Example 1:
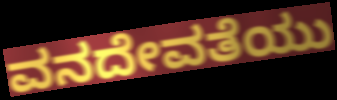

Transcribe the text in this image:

ವನದೇವತೆಯು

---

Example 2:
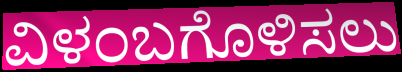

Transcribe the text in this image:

ವಿಳಂಬಗೊಳಿಸಲು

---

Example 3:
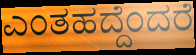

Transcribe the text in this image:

ಎಂತಹದ್ದೆಂದರೆ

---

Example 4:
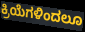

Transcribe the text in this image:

ಕ್ರಿಯೆಗಳಿಂದಲೂ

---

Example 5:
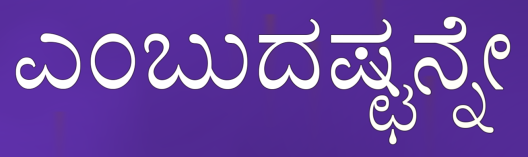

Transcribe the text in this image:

ಎಂಬುದಷ್ಟನ್ನೇ